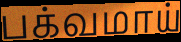
பக்வமாய்